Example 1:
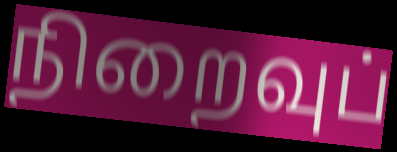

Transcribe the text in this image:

நிறைவுப்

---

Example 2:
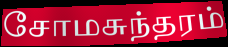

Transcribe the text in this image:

சோமசுந்தரம்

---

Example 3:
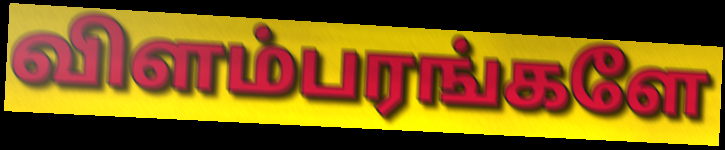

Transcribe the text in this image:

விளம்பரங்களே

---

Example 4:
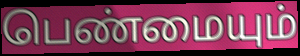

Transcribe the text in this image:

பெண்மையும்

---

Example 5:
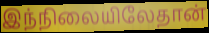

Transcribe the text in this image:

இந்நிலையிலேதான்